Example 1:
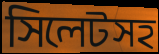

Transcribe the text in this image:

সিলেটসহ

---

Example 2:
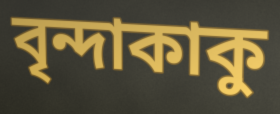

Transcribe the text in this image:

বৃন্দাকাকু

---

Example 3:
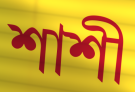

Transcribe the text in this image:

শাশী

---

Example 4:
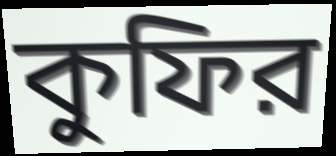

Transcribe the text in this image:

কুফির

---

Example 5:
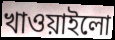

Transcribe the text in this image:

খাওয়াইলো